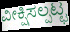
ವೀಕ್ಷಿಸಲ್ಪಟ್ಟ